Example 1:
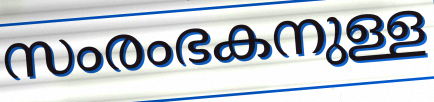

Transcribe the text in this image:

സംരംഭകനുള്ള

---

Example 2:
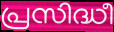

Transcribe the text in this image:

പ്രസിദ്ധീ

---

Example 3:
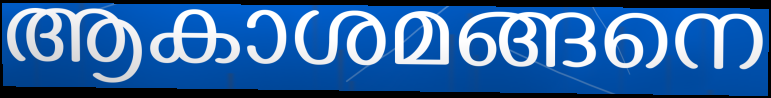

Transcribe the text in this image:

ആകാശമങ്ങനെ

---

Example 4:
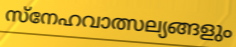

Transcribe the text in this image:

സ്നേഹവാത്സല്യങ്ങളും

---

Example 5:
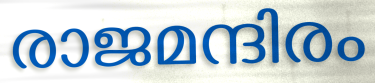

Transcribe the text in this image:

രാജമന്ദിരം